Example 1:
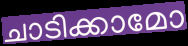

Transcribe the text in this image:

ചാടിക്കാമോ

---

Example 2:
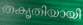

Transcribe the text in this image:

തകൃതിയായി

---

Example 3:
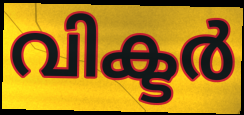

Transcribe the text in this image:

വിക്ടർ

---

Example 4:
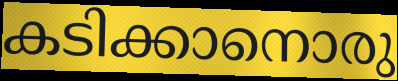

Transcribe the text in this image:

കടിക്കാനൊരു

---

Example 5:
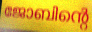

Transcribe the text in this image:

ജോബിന്റെ